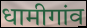
धामीगांव